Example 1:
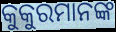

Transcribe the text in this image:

କୁକୁରମାନଙ୍କ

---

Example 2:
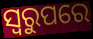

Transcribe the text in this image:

ସ୍ୱରୁପରେ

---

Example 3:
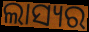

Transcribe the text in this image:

ଲାସ୍ୟର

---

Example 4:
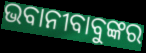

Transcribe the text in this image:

ଭବାନୀବାବୁଙ୍କର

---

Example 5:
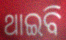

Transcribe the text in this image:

ଥାଇବି